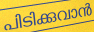
പിടിക്കുവാൻ